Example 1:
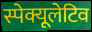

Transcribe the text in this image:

स्पेक्यूलेटिव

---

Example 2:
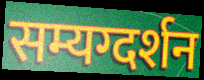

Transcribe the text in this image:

सम्‍यग्‍दर्शन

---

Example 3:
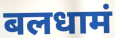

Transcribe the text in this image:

बलधामं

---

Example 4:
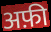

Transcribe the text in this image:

अफ़ी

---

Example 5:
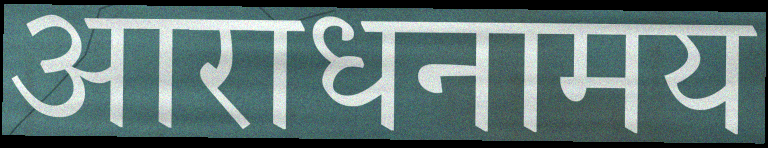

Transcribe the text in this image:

आराधनामय